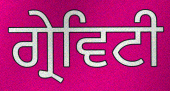
ਗ੍ਰੇਵਿਟੀ